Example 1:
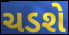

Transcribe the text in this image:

ચડશે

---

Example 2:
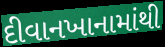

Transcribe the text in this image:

દીવાનખાનામાંથી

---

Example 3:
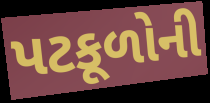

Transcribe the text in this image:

પટકૂળોની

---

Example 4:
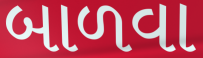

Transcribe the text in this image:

બાળવા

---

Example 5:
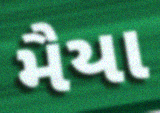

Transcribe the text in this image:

મૈયા